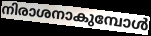
നിരാശനാകുമ്പോൾ